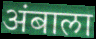
अंबाला